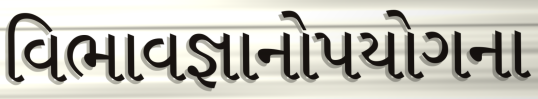
વિભાવજ્ઞાનોપયોગના